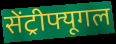
सेंट्रीफ्यूगल